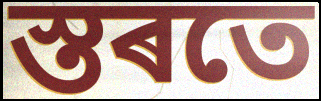
স্তৰতে